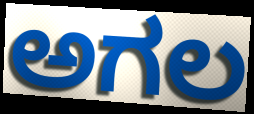
ಅಗಲ